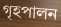
গৃহপালন